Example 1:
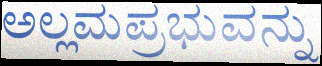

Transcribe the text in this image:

ಅಲ್ಲಮಪ್ರಭುವನ್ನು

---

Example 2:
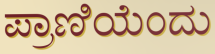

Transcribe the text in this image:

ಪ್ರಾಣಿಯೆಂದು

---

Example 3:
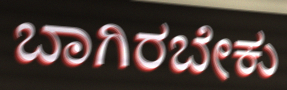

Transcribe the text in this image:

ಬಾಗಿರಬೇಕು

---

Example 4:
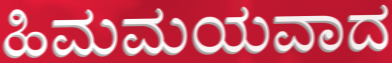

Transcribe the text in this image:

ಹಿಮಮಯವಾದ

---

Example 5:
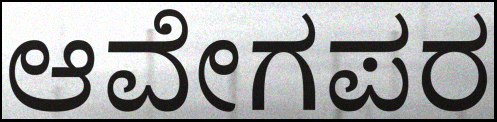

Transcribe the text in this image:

ಆವೇಗಪರ